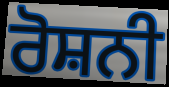
ਰੋਸ਼ਨੀ